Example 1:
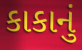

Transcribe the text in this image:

કાકાનું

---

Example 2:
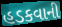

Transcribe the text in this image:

હડકવાની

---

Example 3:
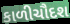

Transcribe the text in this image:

કાળીચૌદશ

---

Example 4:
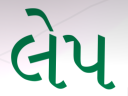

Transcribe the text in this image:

લેપ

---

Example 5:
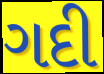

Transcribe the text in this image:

ગદી